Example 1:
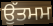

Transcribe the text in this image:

ਉੱਤਮਮ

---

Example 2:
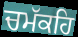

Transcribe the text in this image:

ਚਮੱਕਹਿ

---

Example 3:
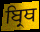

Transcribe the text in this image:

ਬ੍ਰਿਥ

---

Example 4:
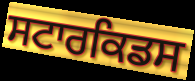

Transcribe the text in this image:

ਸਟਾਰਕਿਡਸ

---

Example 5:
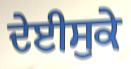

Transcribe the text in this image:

ਦੇਈਸੁਕੇ